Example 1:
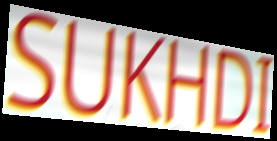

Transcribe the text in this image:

SUKHDI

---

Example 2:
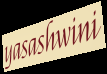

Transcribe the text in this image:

yasashwini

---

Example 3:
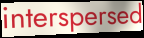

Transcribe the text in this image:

interspersed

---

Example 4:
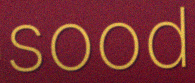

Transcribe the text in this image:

sood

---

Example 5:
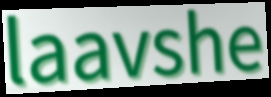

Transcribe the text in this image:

laavshe